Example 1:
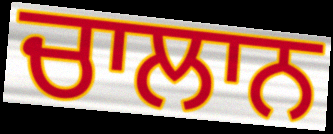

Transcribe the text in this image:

ਚਾਲਾਨ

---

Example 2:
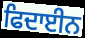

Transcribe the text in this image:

ਫਿਦਾਈਨ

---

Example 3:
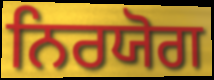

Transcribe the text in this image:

ਨਿਰਯੋਗ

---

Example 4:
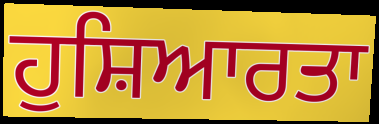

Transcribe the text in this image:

ਹੁਸ਼ਿਆਰਤਾ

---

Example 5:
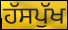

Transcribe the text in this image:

ਹੱਸਪੁੱਖ